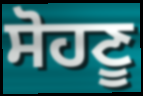
ਸੋਹਣੂ